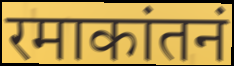
रमाकांतनं